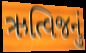
ઋત્વિજનું